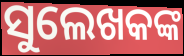
ସୁଲେଖକଙ୍କ